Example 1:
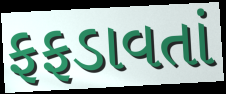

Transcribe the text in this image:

ફફડાવતાં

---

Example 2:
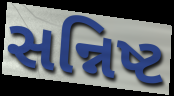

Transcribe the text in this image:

સન્નિષ્ટ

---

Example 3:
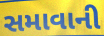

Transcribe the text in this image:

સમાવાની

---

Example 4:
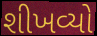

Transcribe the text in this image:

શીખવ્યો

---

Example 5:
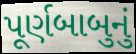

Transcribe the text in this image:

પૂર્ણબાબુનું